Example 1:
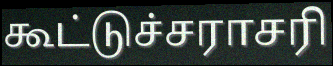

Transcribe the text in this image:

கூட்டுச்சராசரி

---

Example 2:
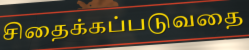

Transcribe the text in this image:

சிதைக்கப்படுவதை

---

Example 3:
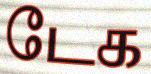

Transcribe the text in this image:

டேக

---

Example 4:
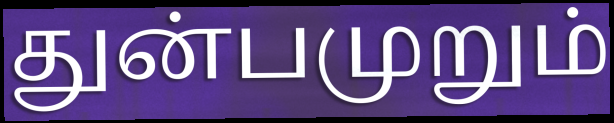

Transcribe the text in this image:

துன்பமுறும்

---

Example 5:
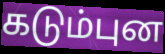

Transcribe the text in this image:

கடும்புன